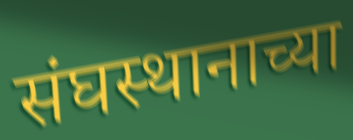
संघस्थानाच्या